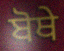
ਬੋਥੇ